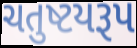
ચતુષ્ટયરૂપ